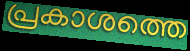
പ്രകാശത്തെ